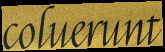
coluerunt